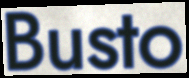
Busto